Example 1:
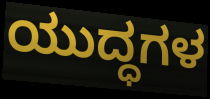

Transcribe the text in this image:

ಯುದ್ಧಗಳ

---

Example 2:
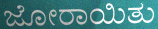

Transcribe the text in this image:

ಜೋರಾಯಿತು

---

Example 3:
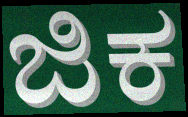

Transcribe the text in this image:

ಜಿಕ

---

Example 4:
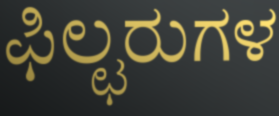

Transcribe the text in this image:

ಫಿಲ್ಟರುಗಳ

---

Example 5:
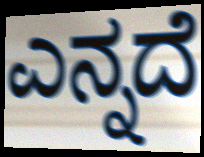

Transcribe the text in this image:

ಎನ್ನದೆ